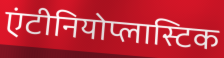
एंटीनियोप्लास्टिक